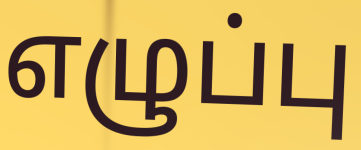
எழுப்பு